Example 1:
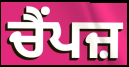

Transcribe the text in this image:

ਚੈਂਪਜ਼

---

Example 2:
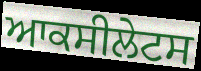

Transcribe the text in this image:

ਆਕਸੀਲੇਟਸ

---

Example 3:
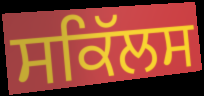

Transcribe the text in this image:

ਸਕਿੱਲਸ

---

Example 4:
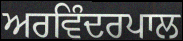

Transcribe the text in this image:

ਅਰਵਿੰਦਰਪਾਲ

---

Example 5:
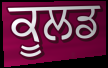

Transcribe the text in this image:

ਕੂਲਡ